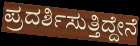
ಪ್ರದರ್ಶಿಸುತ್ತಿದ್ದೇನೆ